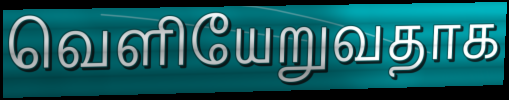
வெளியேறுவதாக